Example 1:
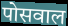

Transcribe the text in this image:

पोसवाल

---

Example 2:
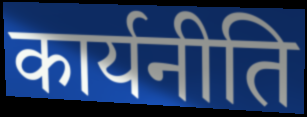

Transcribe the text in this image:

कार्यनीति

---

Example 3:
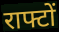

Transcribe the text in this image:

राफ्टों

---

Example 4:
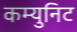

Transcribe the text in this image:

कम्युनिट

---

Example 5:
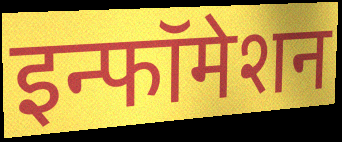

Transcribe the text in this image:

इन्फॉमेशन